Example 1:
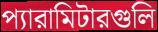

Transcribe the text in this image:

প্যারামিটারগুলি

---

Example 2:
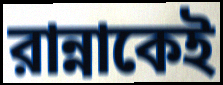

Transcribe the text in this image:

রান্নাকেই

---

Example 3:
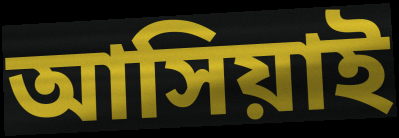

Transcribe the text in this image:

আসিয়াই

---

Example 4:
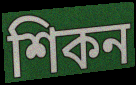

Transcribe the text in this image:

শিকন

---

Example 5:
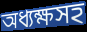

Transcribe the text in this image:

অধ্যক্ষসহ